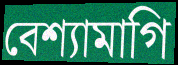
বেশ্যামাগি